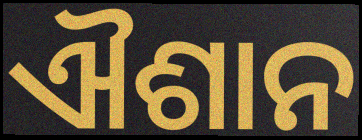
ଐଶାନ